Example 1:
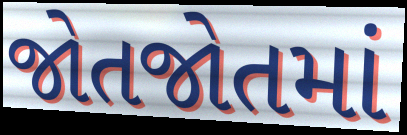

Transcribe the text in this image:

જોતજોતમાં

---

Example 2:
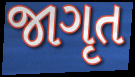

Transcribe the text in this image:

જાગૃત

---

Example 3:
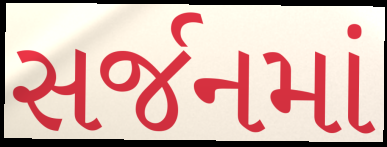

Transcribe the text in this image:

સર્જનમાં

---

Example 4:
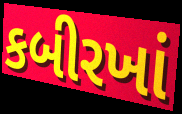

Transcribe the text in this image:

કબીરખાં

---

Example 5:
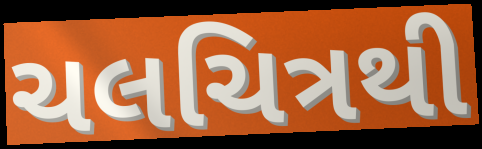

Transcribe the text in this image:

ચલચિત્રથી